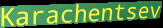
Karachentsev